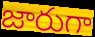
జారుగా